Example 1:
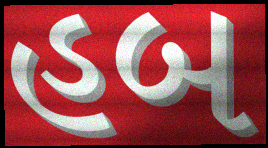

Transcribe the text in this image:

હબ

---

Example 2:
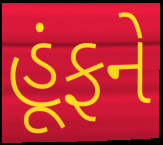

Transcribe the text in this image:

હૂંફને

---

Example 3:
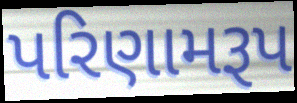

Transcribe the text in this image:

પરિણામરૂપ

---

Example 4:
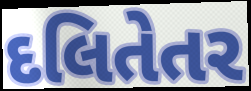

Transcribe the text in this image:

દલિતેતર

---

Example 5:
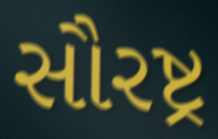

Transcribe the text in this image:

સૌરષ્ટ્ર